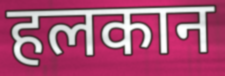
हलकान